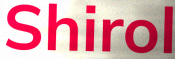
Shirol